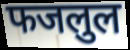
फजलुल